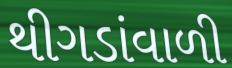
થીગડાંવાળી